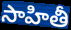
సాహితీ